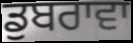
ਡੁਬਰਾਵਾ